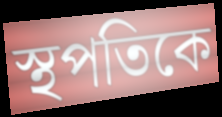
স্থপতিকে